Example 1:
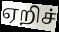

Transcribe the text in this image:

ஏறிச்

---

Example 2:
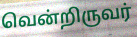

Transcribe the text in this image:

வென்றிருவர்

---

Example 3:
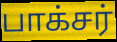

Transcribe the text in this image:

பாக்சர்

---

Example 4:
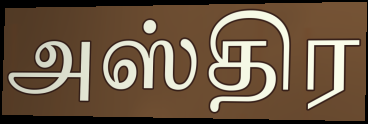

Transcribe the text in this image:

அஸ்திர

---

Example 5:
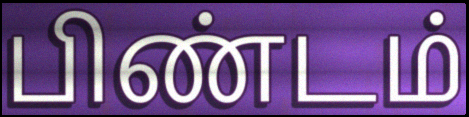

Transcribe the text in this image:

பிண்டம்